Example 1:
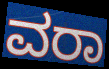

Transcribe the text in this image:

ವರಾ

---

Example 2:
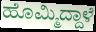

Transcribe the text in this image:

ಹೊಮ್ಮಿದ್ದಾಳೆ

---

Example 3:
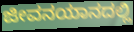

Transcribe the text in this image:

ಜೀವನಯಾನದಲ್ಲಿ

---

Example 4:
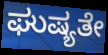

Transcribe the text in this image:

ಘುಷ್ಯತೇ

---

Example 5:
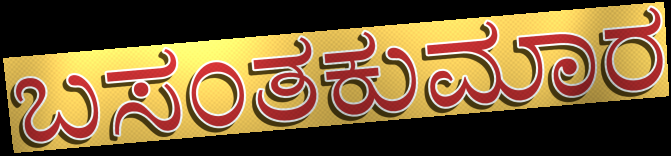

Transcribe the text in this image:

ಬಸಂತಕುಮಾರ